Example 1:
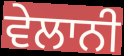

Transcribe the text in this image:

ਵੇਲਾਨੀ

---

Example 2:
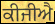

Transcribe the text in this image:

ਕੀਜੀਐ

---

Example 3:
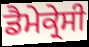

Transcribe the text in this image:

ਡੈਮੇਕ੍ਰੇਸੀ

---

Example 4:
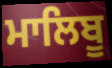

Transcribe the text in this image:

ਮਾਲਿਬੂ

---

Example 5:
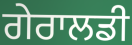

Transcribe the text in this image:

ਗੇਰਾਲਡੀ